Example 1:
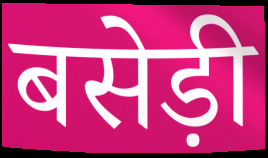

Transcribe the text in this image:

बसेड़ी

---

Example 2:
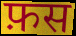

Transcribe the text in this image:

फ़स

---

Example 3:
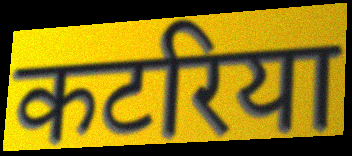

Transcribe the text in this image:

कटरिया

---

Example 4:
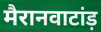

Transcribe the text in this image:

मैरानवाटांड़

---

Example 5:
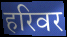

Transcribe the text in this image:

हरिवर